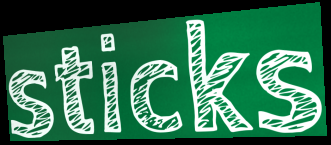
sticks